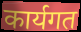
कार्यगत